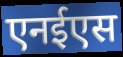
एनईएस